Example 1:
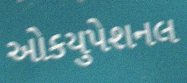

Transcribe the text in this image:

ઓકયુપેશનલ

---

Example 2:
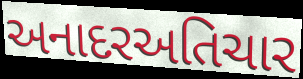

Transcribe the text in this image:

અનાદરઅતિચાર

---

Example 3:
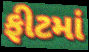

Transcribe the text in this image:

ફીટમાં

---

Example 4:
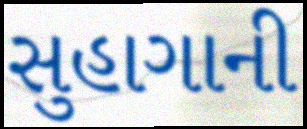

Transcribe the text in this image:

સુહાગાની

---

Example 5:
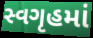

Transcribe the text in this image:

સ્વગૃહમાં